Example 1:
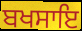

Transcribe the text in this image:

ਬਖਸਾਇ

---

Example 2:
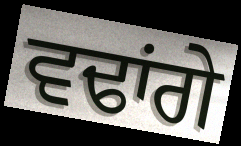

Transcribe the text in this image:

ਵਢਾਂਗੇ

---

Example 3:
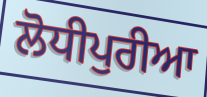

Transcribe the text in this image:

ਲੋਧੀਪੁਰੀਆ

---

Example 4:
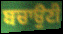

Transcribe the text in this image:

ਬਚਾਉਣੀ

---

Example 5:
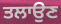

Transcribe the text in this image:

ਤਲਾਉਣ